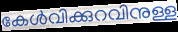
കേൾവിക്കുറവിനുള്ള